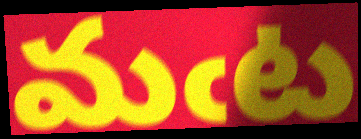
మఁట